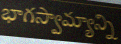
భాగస్వామ్యాన్ని